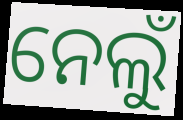
ନେଲୁଁ